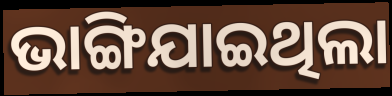
ଭାଙ୍ଗିଯାଇଥିଲା